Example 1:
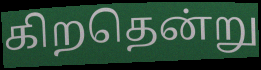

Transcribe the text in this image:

கிறதென்று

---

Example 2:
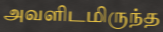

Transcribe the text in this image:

அவளிடமிருந்த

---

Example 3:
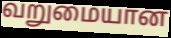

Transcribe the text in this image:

வறுமையான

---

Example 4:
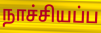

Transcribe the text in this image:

நாச்சியப்ப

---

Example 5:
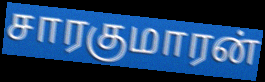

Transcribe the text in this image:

சாரகுமாரன்